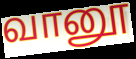
வானூ